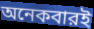
অনেকবারই